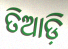
ତିଆଡ଼ି